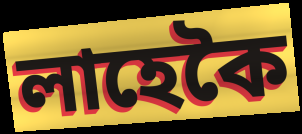
লাহেকৈ